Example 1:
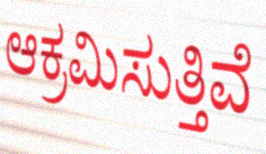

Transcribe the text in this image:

ಆಕ್ರಮಿಸುತ್ತಿವೆ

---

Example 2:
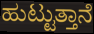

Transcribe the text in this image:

ಹುಟ್ಟುತ್ತಾನೆ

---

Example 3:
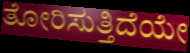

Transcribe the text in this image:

ತೋರಿಸುತ್ತಿದೆಯೇ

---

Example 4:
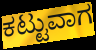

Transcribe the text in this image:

ಕಟ್ಟುವಾಗ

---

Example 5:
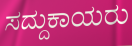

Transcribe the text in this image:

ಸದ್ದುಕಾಯರು